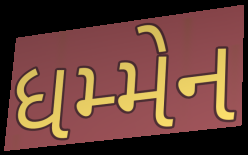
ધમ્મેન